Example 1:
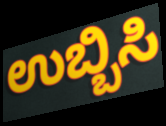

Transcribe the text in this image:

ಉಬ್ಬಿಸಿ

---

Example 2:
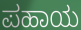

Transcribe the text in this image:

ಪಹಾಯ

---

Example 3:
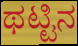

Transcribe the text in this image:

ಥಟ್ಟಿನ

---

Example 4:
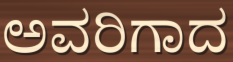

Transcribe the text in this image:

ಅವರಿಗಾದ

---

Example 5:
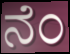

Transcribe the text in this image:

ನೆಂ